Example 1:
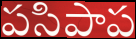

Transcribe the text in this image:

పసిపాప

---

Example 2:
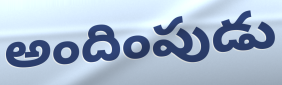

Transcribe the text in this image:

అందింపుడు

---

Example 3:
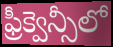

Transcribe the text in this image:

ఫ్రీక్వెన్సీలో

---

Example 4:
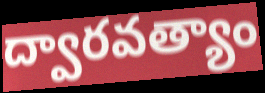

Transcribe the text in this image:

ద్వారవత్యాం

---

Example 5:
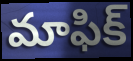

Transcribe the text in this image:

మాఫిక్